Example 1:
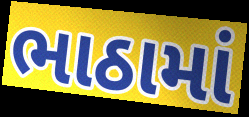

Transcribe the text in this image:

ભાઠામાં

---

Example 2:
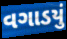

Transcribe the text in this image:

વગાડયું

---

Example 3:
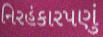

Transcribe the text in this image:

નિરહંકારપણું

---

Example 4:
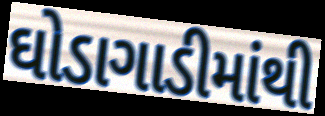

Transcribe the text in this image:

ઘોડાગાડીમાંથી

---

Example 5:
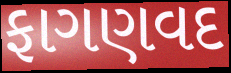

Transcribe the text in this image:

ફાગણવદ